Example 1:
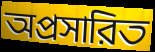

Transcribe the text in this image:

অপ্রসারিত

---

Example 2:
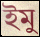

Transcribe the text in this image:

ইমু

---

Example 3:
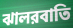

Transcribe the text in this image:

ঝালরবাতি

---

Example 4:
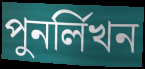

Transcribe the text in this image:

পুনর্লিখন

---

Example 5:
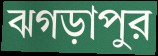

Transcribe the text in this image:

ঝগড়াপুর